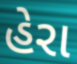
હેરા